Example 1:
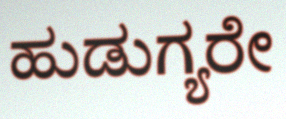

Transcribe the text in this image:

ಹುಡುಗ್ಯರೇ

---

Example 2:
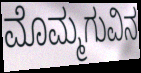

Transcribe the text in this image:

ಮೊಮ್ಮಗುವಿನ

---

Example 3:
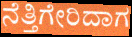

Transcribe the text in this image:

ನೆತ್ತಿಗೇರಿದಾಗ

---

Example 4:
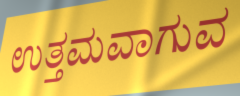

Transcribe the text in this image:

ಉತ್ತಮವಾಗುವ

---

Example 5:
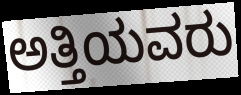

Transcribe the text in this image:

ಅತ್ತಿಯವರು